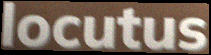
locutus